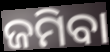
ଜମିବା